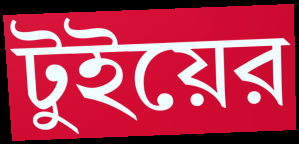
টুইয়ের